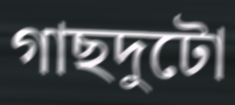
গাছদুটো